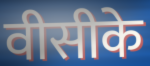
वीसीके